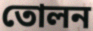
তোলন